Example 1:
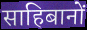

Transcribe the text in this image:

साहिबानों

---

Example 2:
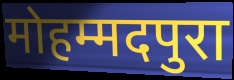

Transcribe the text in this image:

मोहम्मदपुरा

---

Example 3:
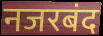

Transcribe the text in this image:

नजरबंद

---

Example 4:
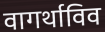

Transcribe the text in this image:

वागर्थाविव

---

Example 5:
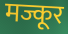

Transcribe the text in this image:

मज्कूर